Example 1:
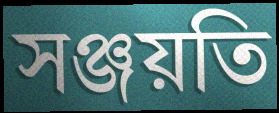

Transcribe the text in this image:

সঞ্জয়তি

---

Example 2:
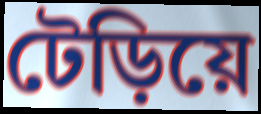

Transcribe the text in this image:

টেড়িয়ে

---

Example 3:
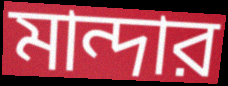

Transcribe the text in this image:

মান্দার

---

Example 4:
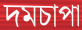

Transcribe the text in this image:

দমচাপা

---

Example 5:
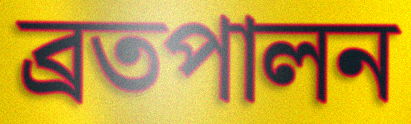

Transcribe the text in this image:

ব্রতপালন